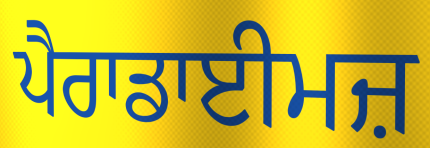
ਪੈਰਾਡਾਈਮਜ਼